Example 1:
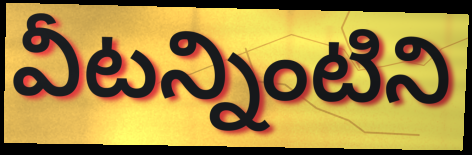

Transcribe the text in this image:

వీటన్నింటిని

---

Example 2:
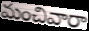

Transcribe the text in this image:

మంచివారా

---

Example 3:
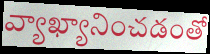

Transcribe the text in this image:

వ్యాఖ్యానించడంతో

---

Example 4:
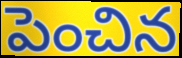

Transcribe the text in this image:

పెంచిన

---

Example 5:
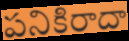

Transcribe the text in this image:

పనికిరాదా